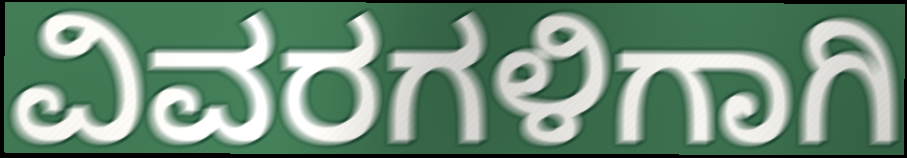
ವಿವರಗಳಿಗಾಗಿ